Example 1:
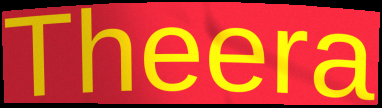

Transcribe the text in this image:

Theera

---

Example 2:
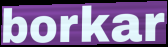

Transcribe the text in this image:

borkar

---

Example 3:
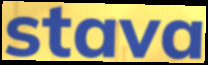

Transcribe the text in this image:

stava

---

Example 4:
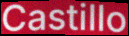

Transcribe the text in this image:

Castillo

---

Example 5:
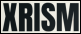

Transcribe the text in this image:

XRISM